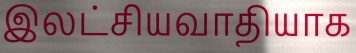
இலட்சியவாதியாக